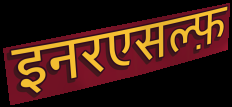
इनरएसल्फ़